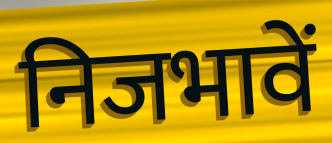
निजभावें